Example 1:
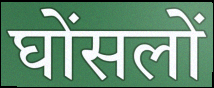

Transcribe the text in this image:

घोंसलों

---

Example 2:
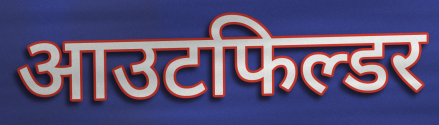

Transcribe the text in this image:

आउटफिल्डर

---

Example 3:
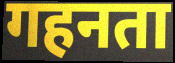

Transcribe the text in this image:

गहनता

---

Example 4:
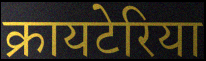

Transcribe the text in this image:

क्रायटेरिया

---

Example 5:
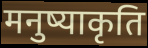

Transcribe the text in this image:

मनुष्याकृति